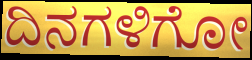
ದಿನಗಳಿಗೋ